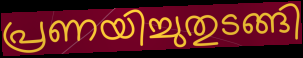
പ്രണയിച്ചുതുടങ്ങി